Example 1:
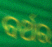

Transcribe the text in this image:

ବର୍ଥର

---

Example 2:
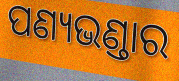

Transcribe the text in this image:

ପଣ୍ୟଭଣ୍ଡାର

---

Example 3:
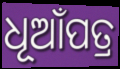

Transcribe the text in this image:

ଧୂଆଁପତ୍ର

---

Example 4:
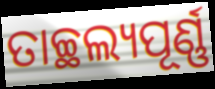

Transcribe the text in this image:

ତାଚ୍ଛଲ୍ୟପୂର୍ଣ୍ଣ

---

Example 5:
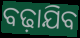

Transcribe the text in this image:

ବଢ଼ାଯିବ